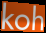
koh